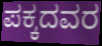
ಪಕ್ಕದವರ